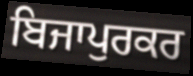
ਬਿਜਾਪੁਰਕਰ